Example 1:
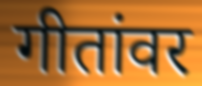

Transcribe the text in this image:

गीतांवर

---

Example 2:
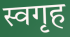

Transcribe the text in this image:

स्वगृह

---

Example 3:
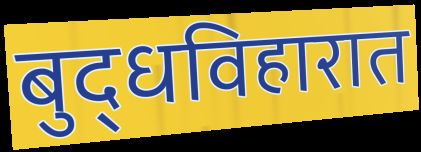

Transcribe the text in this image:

बुद्धविहारात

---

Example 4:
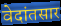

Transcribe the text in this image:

वेदांतसार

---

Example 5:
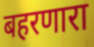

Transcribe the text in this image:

बहरणारा